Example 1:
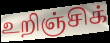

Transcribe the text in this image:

உறிஞ்சிக்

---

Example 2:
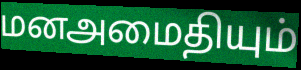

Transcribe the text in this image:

மனஅமைதியும்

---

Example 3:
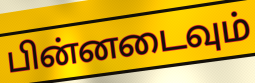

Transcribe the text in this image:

பின்னடைவும்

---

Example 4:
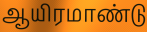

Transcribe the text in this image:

ஆயிரமாண்டு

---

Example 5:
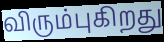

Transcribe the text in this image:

விரும்புகிறது